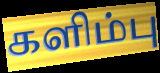
களிம்பு